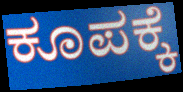
ಕೂಪಕ್ಕೆ